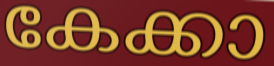
കേക്കാ